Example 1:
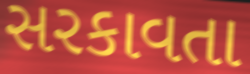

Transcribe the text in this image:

સરકાવતા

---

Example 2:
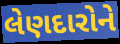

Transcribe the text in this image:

લેણદારોને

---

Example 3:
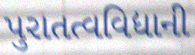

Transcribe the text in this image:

પુરાતત્વવિદ્યાની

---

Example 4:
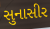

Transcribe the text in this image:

સુનાસીર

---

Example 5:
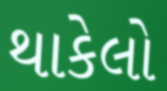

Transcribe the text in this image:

થાકેલો